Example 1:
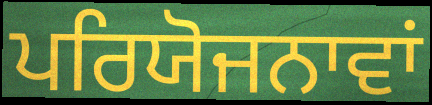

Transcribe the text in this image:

ਪਰਿਯੋਜਨਾਵਾਂ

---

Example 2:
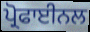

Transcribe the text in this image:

ਪ੍ਰੋਫਾਈਨਲ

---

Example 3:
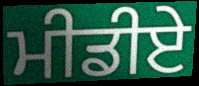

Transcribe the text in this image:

ਮੀਡੀਏ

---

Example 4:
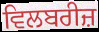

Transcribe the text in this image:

ਵਿਲਬਰੀਜ਼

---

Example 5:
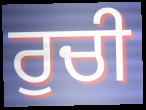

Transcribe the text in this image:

ਰੁਚੀ